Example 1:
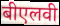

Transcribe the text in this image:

बीएलवी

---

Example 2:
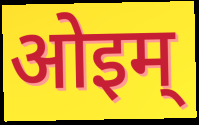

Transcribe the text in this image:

ओइम्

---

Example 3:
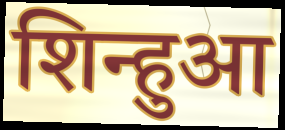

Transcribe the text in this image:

शिन्‍हुआ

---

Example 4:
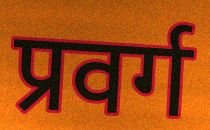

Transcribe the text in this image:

प्रवर्ग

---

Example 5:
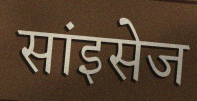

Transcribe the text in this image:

सांइसेज